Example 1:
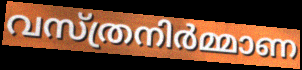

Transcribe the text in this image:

വസ്ത്രനിർമ്മാണ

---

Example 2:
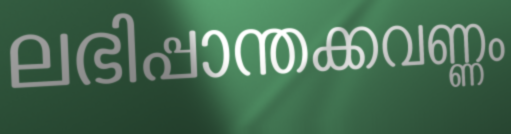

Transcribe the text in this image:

ലഭിപ്പാന്തക്കവണ്ണം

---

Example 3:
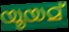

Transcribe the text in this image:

യൂയമ്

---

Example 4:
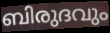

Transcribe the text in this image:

ബിരുദവും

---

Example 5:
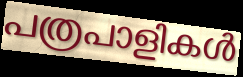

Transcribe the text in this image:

പത്രപാളികൾ